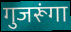
गुजरूंगा